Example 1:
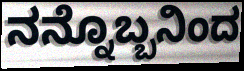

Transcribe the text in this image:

ನನ್ನೊಬ್ಬನಿಂದ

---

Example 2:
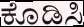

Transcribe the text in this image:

ಕೊಡಿಸಿ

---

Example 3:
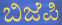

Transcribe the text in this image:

ಬಿಜೆಪಿ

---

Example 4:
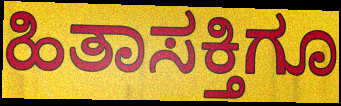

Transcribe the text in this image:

ಹಿತಾಸಕ್ತಿಗೂ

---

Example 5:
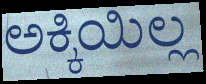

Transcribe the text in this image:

ಅಕ್ಕಿಯಿಲ್ಲ